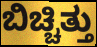
ಬಿಚ್ಚಿತ್ತು